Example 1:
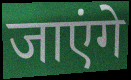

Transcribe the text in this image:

जाएंगे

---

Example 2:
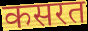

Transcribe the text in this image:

कसरत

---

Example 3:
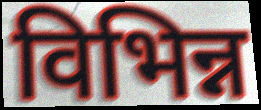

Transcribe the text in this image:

विभिन्न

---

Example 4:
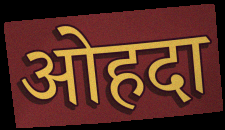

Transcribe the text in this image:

ओहदा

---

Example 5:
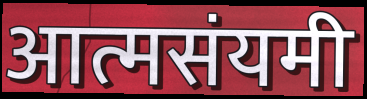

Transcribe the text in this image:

आत्मसंयमी